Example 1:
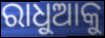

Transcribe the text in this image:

ରାଧୁଆକୁ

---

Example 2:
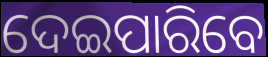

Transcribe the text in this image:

ଦେଇପାରିବେ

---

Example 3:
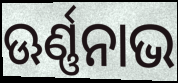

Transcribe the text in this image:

ଊର୍ଣ୍ଣନାଭ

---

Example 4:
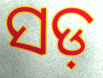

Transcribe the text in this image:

ସଡ଼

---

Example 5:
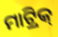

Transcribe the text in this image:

ମାଟ୍ରିକ୍